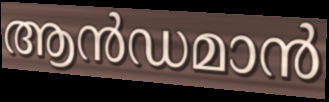
ആൻഡമാൻ